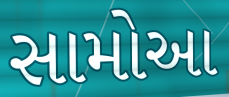
સામોઆ